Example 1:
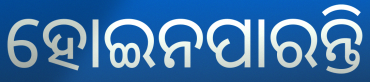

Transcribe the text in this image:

ହୋଇନପାରନ୍ତି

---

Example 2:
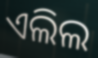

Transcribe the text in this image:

ଏଲିଲ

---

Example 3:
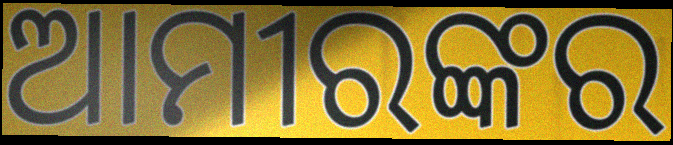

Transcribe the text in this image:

ଆମୀରଙ୍କର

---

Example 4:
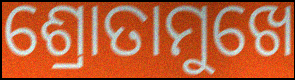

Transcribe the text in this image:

ଶ୍ରୋତାମୁଖେ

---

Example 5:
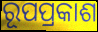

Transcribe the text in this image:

ରୂପପ୍ରକାଶ